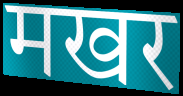
मखर